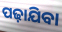
ପଢ଼ାଯିବା